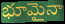
భూమైనా